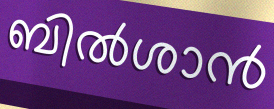
ബിൽശാൻ